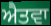
ਐਤਵਾ